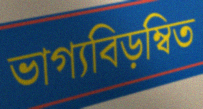
ভাগ্যবিড়ম্বিত